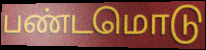
பண்டமொடு